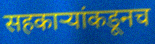
सहकार्‍यांकडूनच